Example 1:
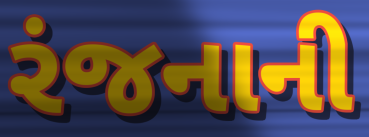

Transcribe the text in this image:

રંજનાની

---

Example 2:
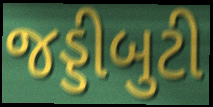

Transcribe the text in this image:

જડ્ડીબુટી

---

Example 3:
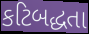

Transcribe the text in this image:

કટિબદ્ધતા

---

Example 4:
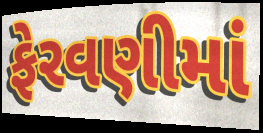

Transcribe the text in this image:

ફેરવણીમાં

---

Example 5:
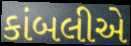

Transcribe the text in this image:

કાંબલીએ